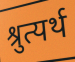
श्रुत्यर्थ